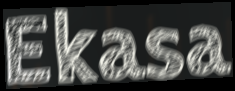
Ekasa